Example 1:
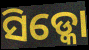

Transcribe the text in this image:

ସିଡ୍କୋ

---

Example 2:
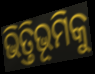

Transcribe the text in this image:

ଭିତ୍ତିଭୂମିକୁ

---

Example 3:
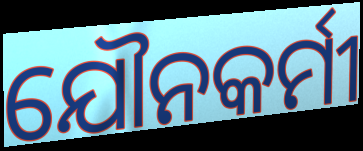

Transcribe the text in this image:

ଯୌନକର୍ମୀ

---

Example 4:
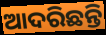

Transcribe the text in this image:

ଆଦରିଛନ୍ତି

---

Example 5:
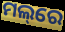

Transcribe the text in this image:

ମଲ୍‌ରେ